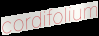
cordifolium